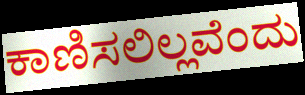
ಕಾಣಿಸಲಿಲ್ಲವೆಂದು